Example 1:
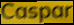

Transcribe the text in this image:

Caspar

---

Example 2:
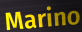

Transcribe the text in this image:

Marino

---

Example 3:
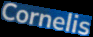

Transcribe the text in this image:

Cornelis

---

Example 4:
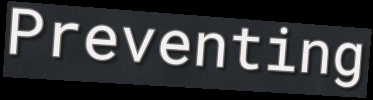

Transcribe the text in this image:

Preventing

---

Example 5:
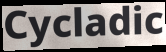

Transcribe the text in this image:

Cycladic